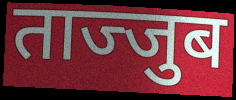
ताज्जुब